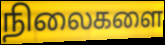
நிலைகளை